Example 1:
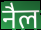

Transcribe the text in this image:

नैल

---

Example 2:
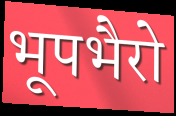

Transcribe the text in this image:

भूपभैरो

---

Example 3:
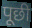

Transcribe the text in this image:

पूछी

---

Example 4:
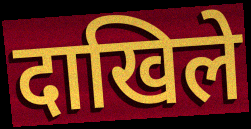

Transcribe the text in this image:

दाखिले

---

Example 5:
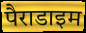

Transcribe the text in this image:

पैराडाइम